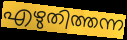
എഴുതിത്തന്ന